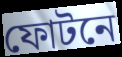
ফোটনে